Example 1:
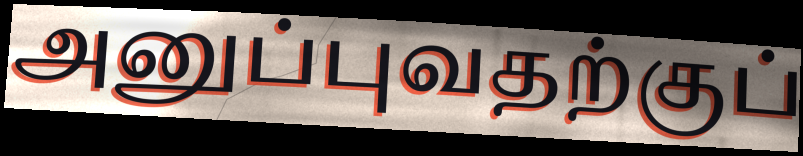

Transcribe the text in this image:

அனுப்புவதற்குப்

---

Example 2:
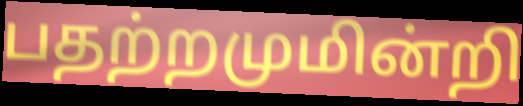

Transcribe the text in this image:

பதற்றமுமின்றி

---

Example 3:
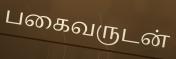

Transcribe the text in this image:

பகைவருடன்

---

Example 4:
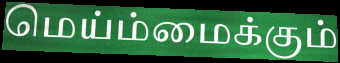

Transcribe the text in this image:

மெய்ம்மைக்கும்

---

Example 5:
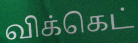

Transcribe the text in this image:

விக்கெட்